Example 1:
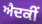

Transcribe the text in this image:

ਐਦਕੀਂ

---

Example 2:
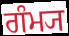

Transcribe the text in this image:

ਗੰਮ੍ਯ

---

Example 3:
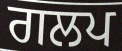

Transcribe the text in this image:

ਗਲਪ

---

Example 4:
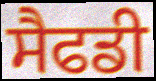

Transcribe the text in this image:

ਸੈਫਡੀ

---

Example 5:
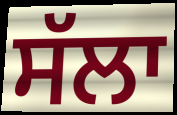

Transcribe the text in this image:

ਸੱਲਾ